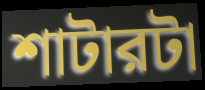
শাটারটা